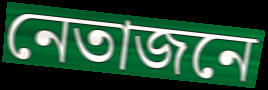
নেতাজনে